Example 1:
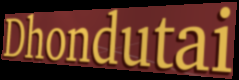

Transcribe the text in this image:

Dhondutai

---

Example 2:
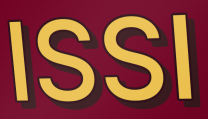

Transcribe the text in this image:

ISSI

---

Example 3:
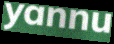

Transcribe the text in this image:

yannu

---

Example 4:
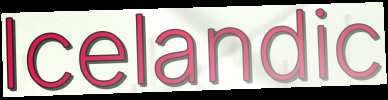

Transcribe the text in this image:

Icelandic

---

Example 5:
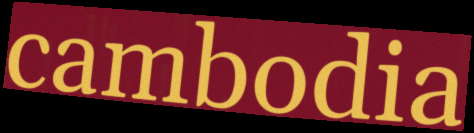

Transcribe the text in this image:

cambodia